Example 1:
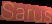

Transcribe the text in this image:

Sarus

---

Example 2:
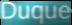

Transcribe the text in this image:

Duque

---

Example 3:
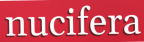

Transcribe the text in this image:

nucifera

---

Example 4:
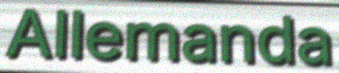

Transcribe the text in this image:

Allemanda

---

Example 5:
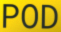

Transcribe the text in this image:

POD